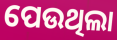
ପେଉଥିଲା